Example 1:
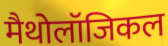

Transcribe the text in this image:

मैथोलॉजिकल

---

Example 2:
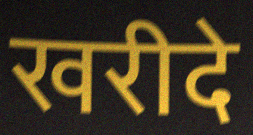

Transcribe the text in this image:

खरीदे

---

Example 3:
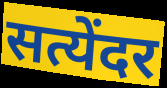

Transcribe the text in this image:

सत्येंदर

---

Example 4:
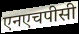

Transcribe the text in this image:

एनएचपीसी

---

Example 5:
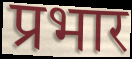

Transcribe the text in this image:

प्रभार